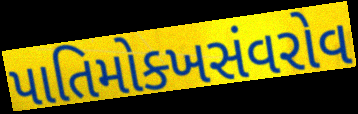
પાતિમોક્ખસંવરોવ